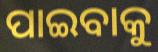
ପାଇବାକୁ